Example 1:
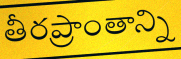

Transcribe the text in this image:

తీరప్రాంతాన్ని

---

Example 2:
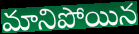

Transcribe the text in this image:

మానిపోయిన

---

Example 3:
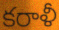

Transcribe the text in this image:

కరాళీ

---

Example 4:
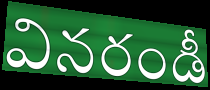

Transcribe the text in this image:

వినరండీ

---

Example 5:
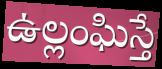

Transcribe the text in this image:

ఉల్లంఘిస్తే